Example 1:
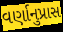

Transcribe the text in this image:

વર્ણાનુપ્રાસ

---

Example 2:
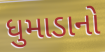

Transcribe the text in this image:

ધુમાડાનો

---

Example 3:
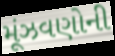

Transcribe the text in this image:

મૂંઝવણોની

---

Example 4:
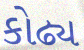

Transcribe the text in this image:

કોઢ્ય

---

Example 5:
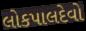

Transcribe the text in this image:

લોકપાલદેવો